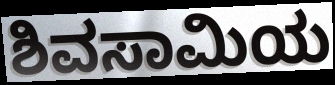
ಶಿವಸಾಮಿಯ